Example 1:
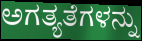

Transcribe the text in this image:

ಅಗತ್ಯತೆಗಳನ್ನು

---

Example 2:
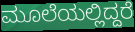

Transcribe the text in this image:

ಮೂಲೆಯಲ್ಲಿದ್ದರೆ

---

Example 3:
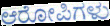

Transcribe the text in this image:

ಆರೋಪಿಗಳು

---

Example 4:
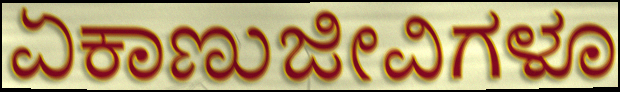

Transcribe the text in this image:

ಏಕಾಣುಜೀವಿಗಳೂ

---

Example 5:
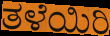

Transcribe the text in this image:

ತಳೆಯಿರಿ